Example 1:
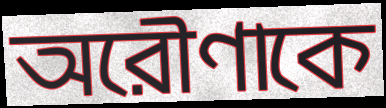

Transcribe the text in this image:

অরৌণাকে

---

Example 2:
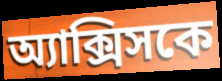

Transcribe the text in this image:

অ্যাক্সিসকে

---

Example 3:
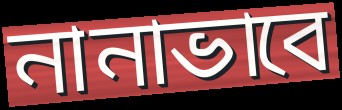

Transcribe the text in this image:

নানাভাবে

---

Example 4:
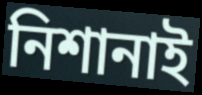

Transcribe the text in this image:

নিশানাই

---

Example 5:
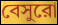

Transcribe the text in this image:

বেসুরো